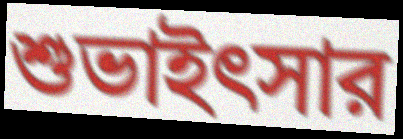
শুভাইৎসার